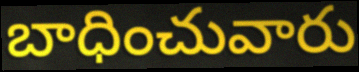
బాధించువారు